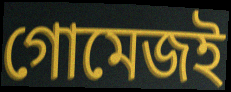
গোমেজই